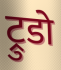
ट्रुडो